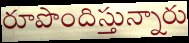
రూపొందిస్తున్నారు